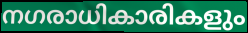
നഗരാധികാരികളും